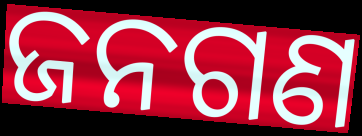
ଜନଗଣ